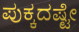
ಪುಕ್ಕದಷ್ಟೇ